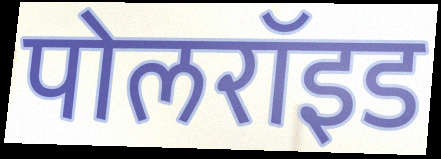
पोलरॉइड